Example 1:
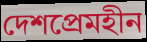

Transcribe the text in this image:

দেশপ্ৰেমহীন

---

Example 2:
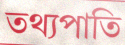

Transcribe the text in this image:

তথ্যপাতি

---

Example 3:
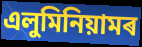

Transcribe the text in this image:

এলুমিনিয়ামৰ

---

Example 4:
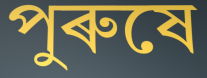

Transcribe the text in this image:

পুৰুষে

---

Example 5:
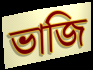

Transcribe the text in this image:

ভাজি